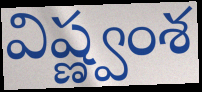
విష్ణ్వంశ